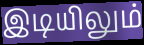
இடியிலும்